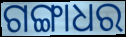
ଗଙ୍ଗାଧର